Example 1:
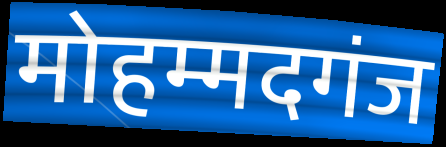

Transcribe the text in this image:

मोहम्मदगंज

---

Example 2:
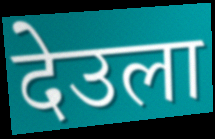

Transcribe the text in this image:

देउला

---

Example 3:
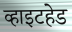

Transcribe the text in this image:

व्हाइटहेड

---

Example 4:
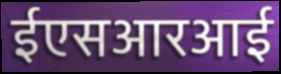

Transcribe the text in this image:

ईएसआरआई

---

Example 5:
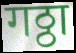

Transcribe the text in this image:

गठ्ठा